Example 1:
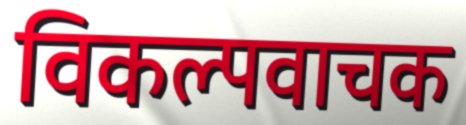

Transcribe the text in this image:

विकल्पवाचक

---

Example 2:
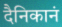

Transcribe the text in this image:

दैनिकानं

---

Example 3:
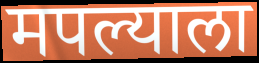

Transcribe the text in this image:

मपल्याला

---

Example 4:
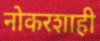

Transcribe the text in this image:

नोकरशाही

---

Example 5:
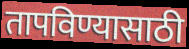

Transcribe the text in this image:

तापविण्यासाठी